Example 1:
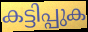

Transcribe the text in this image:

കട്ടിപ്പുക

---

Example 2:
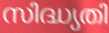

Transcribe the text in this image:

സിദ്ധ്യതി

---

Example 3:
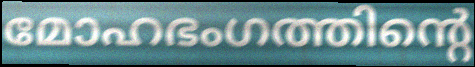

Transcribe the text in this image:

മോഹഭംഗത്തിന്റെ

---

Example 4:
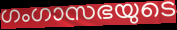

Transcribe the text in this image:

ഗംഗാസഭയുടെ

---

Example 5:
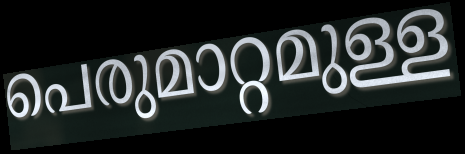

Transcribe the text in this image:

പെരുമാറ്റമുള്ള